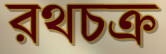
রথচক্র